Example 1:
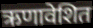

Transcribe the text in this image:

ऋणावेशित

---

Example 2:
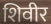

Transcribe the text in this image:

शिवीर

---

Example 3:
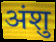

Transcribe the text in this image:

अंशु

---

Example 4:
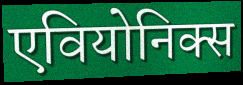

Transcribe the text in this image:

एवियोनिक्स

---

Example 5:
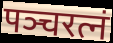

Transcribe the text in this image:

पञ्चरत्नं